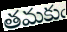
తమకుఁ